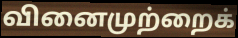
வினைமுற்றைக்